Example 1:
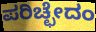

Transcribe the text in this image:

ಪರಿಚ್ಛೇದಂ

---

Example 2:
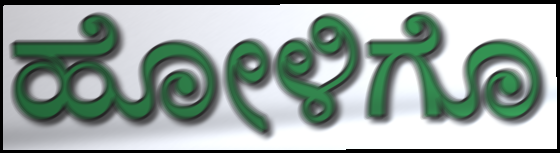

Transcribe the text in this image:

ಹೋಳಿಗೊ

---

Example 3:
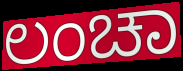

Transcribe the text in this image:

ಲಂಚಾ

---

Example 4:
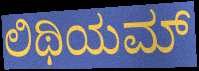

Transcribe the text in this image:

ಲಿಥಿಯಮ್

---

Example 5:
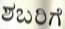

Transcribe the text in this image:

ಶಬರಿಗೆ